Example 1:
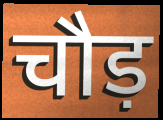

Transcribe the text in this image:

चौड़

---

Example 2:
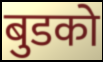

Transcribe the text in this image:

बुडको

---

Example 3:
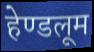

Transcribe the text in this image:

हेण्डलूम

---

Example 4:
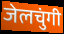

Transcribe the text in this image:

जेलचुंगी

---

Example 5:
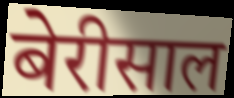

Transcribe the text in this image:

बेरीसाल